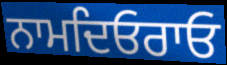
ਨਾਮਦਿਓਰਾਓ